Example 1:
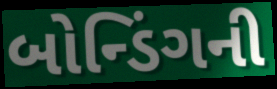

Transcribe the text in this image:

બોન્ડિંગની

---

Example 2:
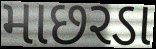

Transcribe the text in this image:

માછરડા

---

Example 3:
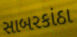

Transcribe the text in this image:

સાબરકાંઠા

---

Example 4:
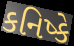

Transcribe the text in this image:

કનિષ્કે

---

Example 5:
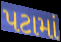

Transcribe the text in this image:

પટામાં